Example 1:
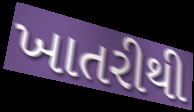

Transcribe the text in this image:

ખાતરીથી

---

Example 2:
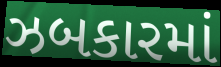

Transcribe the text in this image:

ઝબકારમાં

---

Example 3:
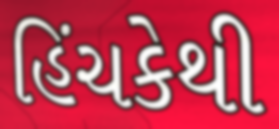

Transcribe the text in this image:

હિંચકેથી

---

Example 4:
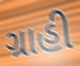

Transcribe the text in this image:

ગ્રાહી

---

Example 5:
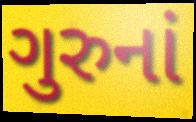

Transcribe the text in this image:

ગુરુનાં